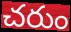
చరుం